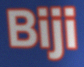
Biji